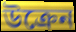
উক্রেন